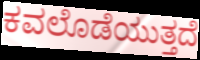
ಕವಲೊಡೆಯುತ್ತದೆ